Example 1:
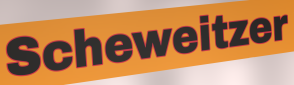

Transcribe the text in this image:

Scheweitzer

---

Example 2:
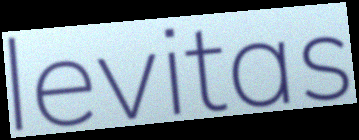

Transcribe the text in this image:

levitas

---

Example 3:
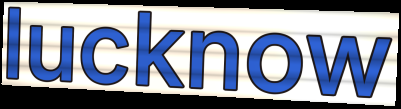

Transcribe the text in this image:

lucknow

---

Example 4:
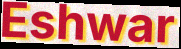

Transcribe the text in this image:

Eshwar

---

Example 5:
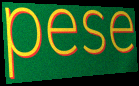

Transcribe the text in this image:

pese